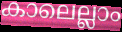
കാലെല്ലാം